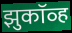
झुकॉव्ह